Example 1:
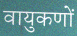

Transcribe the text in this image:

वायुकणों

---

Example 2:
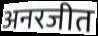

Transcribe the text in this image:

अनरजीत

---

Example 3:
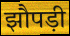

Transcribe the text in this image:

झौपड़ी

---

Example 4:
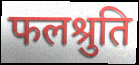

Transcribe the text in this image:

फलश्रुति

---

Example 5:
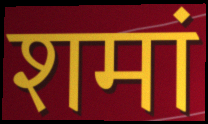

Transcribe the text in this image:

शमां